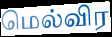
மெல்விர